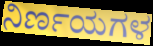
ನಿರ್ಣಯಗಳ